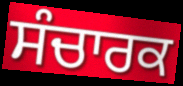
ਸੰਚਾਰਕ